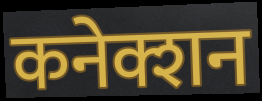
कनेक्‍शन